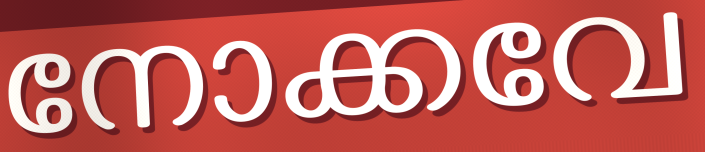
നോക്കവേ